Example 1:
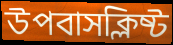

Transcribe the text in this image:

উপবাসক্লিষ্ট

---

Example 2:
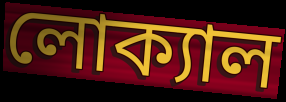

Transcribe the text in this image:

লোক্যাল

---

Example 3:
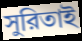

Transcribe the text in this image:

সুরিতাই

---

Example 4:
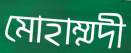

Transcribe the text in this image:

মোহাম্মদী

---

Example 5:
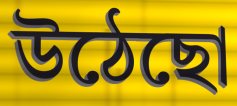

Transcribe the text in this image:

উঠেছো